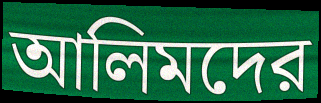
আলিমদের